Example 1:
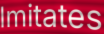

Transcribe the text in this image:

Imitates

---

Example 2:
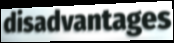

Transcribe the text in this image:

disadvantages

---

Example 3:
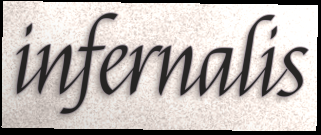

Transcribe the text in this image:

infernalis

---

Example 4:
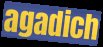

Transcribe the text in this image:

agadich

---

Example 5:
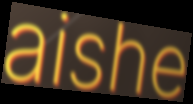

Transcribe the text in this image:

aishe